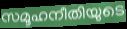
സമൂഹനീതിയുടെ